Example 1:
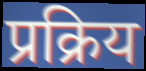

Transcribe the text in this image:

प्रक्रिय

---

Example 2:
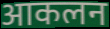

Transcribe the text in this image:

आकलन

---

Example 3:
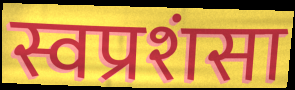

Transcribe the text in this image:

स्वप्रशंसा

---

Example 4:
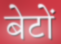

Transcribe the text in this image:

बेटों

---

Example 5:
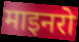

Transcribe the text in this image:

माइनरो